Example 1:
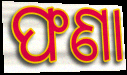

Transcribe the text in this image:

ଫଣା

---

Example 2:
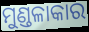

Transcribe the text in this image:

ମୁଣ୍ଡଳାକାର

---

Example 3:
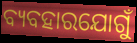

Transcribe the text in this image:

ବ୍ୟବହାରଯୋଗୁଁ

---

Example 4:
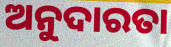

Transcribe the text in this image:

ଅନୁଦାରତା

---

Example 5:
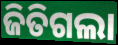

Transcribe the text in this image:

ଜିତିଗଲା